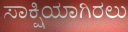
ಸಾಕ್ಷಿಯಾಗಿರಲು